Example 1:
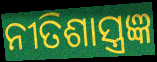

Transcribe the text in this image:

ନୀତିଶାସ୍ତ୍ରଜ୍ଞ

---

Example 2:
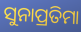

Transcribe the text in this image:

ସୁନାପ୍ରତିମା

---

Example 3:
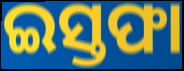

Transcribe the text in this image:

ଇସ୍ତଫା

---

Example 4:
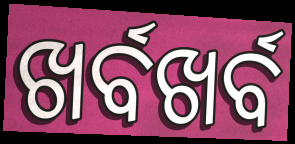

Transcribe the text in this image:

ଖର୍ବଖର୍ବ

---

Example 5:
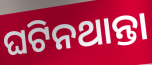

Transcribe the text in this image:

ଘଟିନଥାନ୍ତା